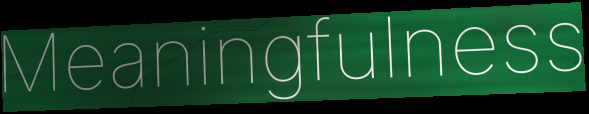
Meaningfulness